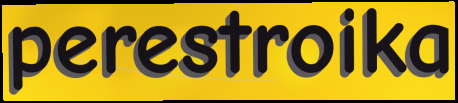
perestroika